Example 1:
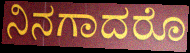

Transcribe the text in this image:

ನಿನಗಾದರೊ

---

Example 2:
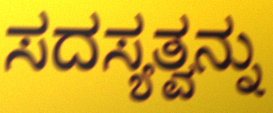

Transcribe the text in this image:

ಸದಸ್ಯತ್ವನ್ನು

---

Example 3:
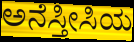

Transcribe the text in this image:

ಅನೆಸ್ತೀಸಿಯ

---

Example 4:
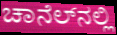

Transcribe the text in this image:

ಚಾನೆಲ್‌ನಲ್ಲಿ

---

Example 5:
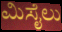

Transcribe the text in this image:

ಮಿಸೈಲು